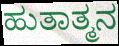
ಹುತಾತ್ಮನ